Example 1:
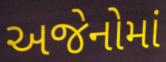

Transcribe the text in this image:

અજેનોમાં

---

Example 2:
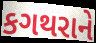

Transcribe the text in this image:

કગથરાને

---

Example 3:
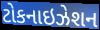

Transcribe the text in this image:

ટોકનાઇઝેશન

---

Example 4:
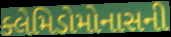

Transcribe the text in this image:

ક્લેમિડોમોનાસની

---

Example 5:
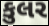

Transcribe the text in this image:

કુલર